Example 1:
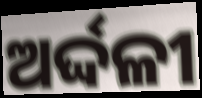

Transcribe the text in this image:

ଅର୍ଦ୍ଦଳୀ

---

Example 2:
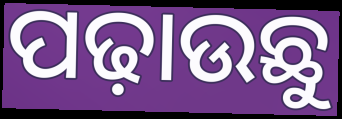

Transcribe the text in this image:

ପଢ଼ାଉଛୁ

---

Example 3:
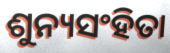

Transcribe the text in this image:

ଶୁନ୍ୟସଂହିତା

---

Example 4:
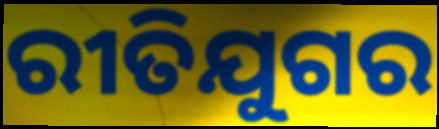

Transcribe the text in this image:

ରୀତିଯୁଗର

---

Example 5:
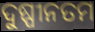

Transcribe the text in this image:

ଦୁଷ୍ପୀନତମ